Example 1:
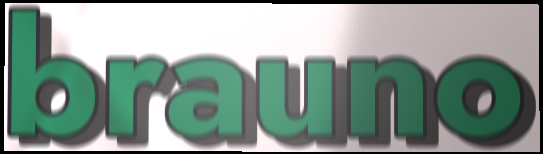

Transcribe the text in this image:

brauno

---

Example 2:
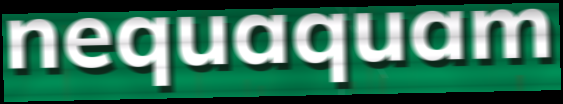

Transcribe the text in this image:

nequaquam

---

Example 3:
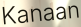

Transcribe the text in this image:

Kanaan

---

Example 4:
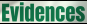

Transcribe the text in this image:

Evidences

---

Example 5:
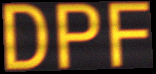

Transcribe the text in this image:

DPF